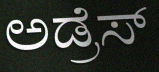
ಅಡ್ರೆಸ್